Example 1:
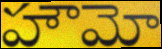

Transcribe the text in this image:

హౌమో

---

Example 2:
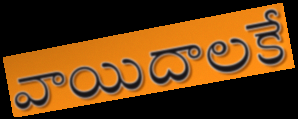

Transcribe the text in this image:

వాయిదాలకే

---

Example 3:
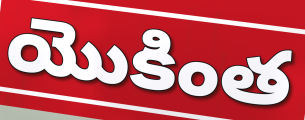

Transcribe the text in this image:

యొకింత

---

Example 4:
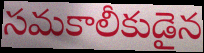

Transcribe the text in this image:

సమకాలీకుడైన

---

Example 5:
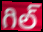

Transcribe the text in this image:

గిల్